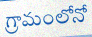
గ్రామంలోనో